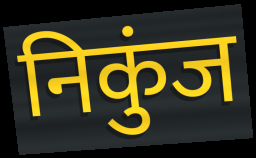
निकुंज